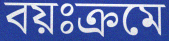
বয়ঃক্রমে